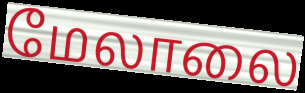
மேலாலை